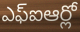
ఎఫ్ఐఆర్లో